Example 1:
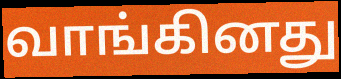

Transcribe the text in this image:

வாங்கினது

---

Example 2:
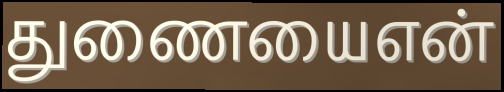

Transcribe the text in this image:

துணையைஎன்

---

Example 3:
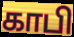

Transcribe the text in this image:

காபி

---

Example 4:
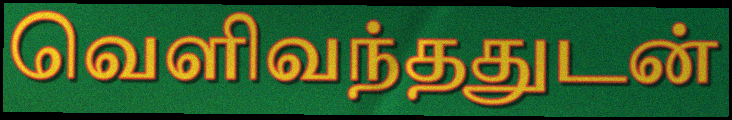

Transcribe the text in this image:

வெளிவந்ததுடன்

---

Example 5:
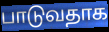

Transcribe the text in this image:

பாடுவதாக